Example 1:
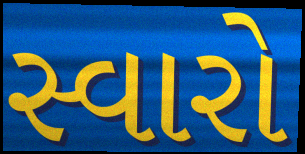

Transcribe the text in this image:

સ્વારો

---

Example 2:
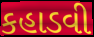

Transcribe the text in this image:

કહાડવી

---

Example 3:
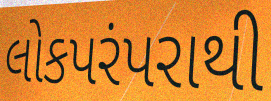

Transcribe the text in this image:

લોકપરંપરાથી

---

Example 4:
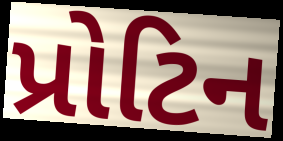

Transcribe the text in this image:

પ્રોટિન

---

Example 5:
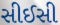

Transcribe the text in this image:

સીઈસી